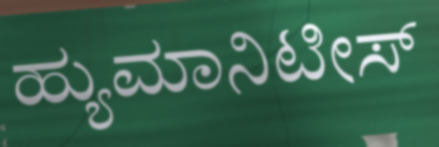
ಹ್ಯುಮಾನಿಟೀಸ್